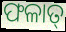
ଫଳାତ୍